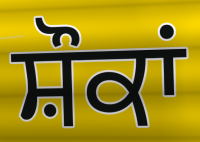
ਸ਼ੌਕਾਂ